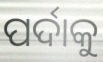
ପର୍ଦାକୁ